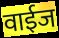
वाईज